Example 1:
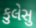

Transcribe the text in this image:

કુલેસુ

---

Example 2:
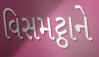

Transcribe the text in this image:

વિસમટ્ઠાને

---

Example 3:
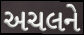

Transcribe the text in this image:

અચલને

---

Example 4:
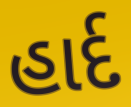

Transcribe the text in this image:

હાર્દ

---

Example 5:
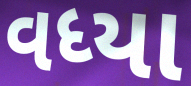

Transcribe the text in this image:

વધ્યા